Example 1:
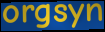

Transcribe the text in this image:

orgsyn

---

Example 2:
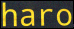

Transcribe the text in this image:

haro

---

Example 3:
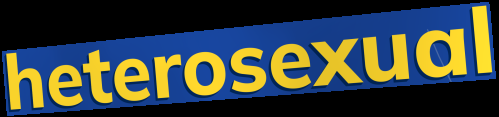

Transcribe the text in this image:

heterosexual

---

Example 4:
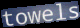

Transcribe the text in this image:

towels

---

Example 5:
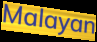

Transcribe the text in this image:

Malayan